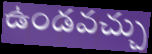
ఉండవచ్చు